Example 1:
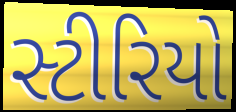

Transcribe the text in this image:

સ્ટીરિયો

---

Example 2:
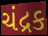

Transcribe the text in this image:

ચંદ્રક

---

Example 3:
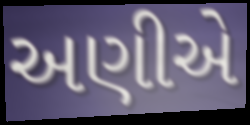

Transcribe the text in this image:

અણીએ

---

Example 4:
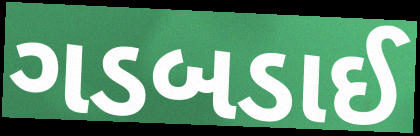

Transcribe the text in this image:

ગડબડાઈ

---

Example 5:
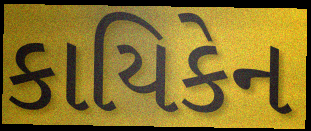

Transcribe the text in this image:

કાયિકેન